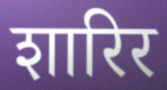
शारिर